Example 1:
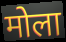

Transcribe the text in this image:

मोला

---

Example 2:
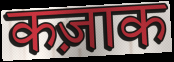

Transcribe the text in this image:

कज़ाक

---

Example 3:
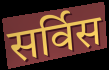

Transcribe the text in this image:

सर्विस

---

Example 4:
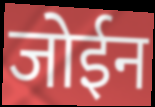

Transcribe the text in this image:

जोईन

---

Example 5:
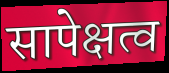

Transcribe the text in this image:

सापेक्षत्व